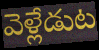
వెళ్లేడుట